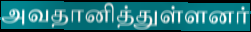
அவதானித்துள்ளனர்